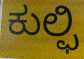
ಕುಲ್ಫಿ